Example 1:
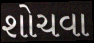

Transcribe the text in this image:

શોચવા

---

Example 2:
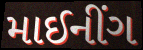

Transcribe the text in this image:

માઈનીંગ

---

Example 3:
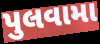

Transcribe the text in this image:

પુલવામા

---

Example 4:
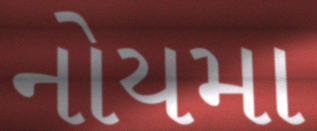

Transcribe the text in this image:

નોયમા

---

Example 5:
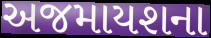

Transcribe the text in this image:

અજમાયશના